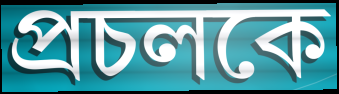
প্রচলকে